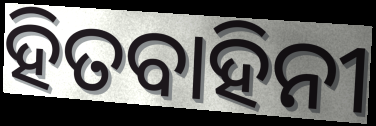
ହିତବାହିନୀ